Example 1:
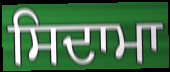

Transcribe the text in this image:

ਸਿਦਾਮਾ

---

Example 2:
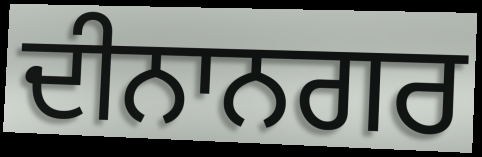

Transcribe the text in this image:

ਦੀਨਾਨਗਰ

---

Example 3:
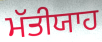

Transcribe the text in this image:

ਮੱਤੀਯਾਹ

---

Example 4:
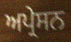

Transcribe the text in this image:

ਅਪ੍ਰੇਸਨ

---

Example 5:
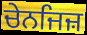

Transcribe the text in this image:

ਚੇਨਜਿਜ਼